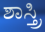
ಶಾಸ್ತ್ರಿ